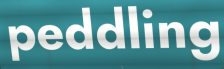
peddling